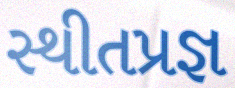
સ્થીતપ્રજ્ઞ